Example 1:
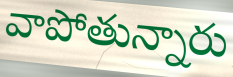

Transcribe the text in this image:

వాపోతున్నారు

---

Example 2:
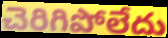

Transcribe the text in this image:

చెరిగిపోలేదు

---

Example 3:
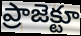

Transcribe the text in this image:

ప్రాజెక్టూ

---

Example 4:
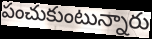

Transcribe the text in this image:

పంచుకుంటున్నారు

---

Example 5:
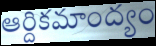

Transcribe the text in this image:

ఆర్దికమాంద్యం